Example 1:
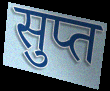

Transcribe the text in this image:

सुप्त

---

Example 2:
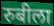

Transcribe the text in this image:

रुबीला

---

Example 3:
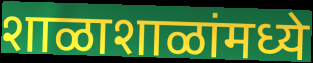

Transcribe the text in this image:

शाळाशाळांमध्ये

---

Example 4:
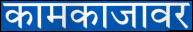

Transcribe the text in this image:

कामकाजावर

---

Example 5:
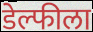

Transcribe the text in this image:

डेल्फीला